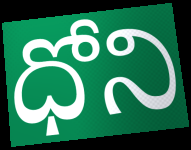
ధోని